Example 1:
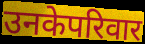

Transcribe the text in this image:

उनकेपरिवार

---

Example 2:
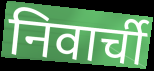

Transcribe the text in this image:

निवार्ची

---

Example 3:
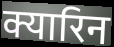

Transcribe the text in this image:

क्यारिन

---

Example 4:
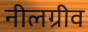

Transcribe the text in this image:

नीलग्रीव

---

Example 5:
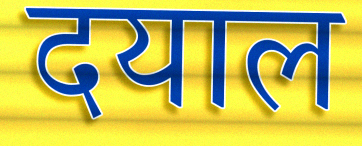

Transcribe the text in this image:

दयाल